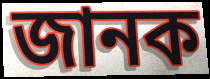
জানক